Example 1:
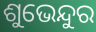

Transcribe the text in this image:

ଶୁଭେନ୍ଦୁର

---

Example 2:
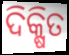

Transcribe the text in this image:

ଦିକ୍ଷିତ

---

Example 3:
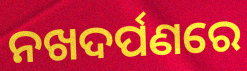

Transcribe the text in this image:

ନଖଦର୍ପଣରେ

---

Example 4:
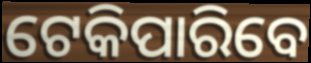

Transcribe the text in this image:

ଟେକିପାରିବେ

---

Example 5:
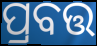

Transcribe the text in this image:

ପ୍ରବତ୍ତ